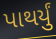
પાથર્યું